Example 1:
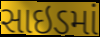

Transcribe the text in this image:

સાઇડમાં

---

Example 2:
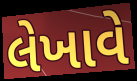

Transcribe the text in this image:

લેખાવે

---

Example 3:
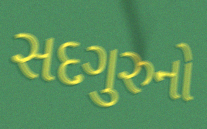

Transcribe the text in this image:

સદગુરુનો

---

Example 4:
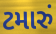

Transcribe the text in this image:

ટમારું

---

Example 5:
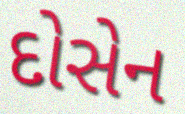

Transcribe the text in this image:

દોસેન